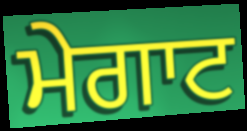
ਮੇਗਾਟ